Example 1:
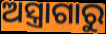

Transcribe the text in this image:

ଅସ୍ତ୍ରାଗାରୁ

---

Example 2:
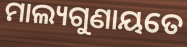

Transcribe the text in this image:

ମାଲ୍ୟଗୁଣାୟତେ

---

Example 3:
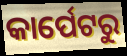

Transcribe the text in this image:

କାର୍ପେଟରୁ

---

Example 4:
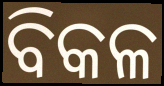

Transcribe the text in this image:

ବିକଳ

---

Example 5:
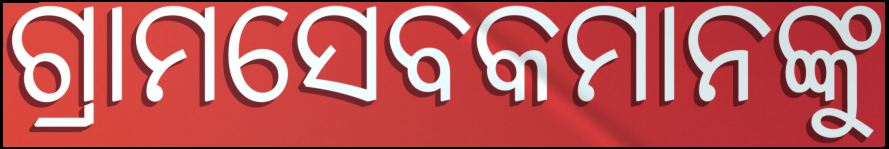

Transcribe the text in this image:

ଗ୍ରାମସେବକମାନଙ୍କୁ